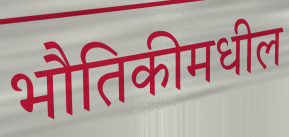
भौतिकीमधील